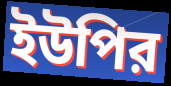
ইউপির